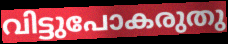
വിട്ടുപോകരുതു